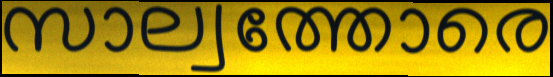
സാല്വത്തോരെ